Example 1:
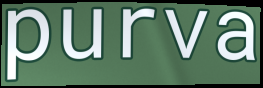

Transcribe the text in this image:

purva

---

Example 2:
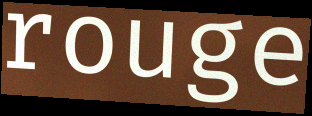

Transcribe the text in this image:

rouge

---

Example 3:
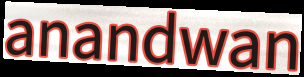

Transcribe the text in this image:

anandwan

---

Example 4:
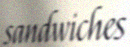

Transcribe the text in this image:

sandwiches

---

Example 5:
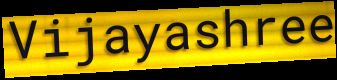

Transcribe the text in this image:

Vijayashree